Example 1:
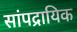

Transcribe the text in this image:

सांपद्रायिक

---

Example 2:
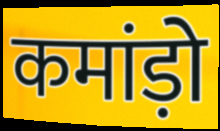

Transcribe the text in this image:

कमांड़ो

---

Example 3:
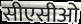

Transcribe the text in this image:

सीएसीओ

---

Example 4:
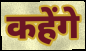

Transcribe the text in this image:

कहेंगे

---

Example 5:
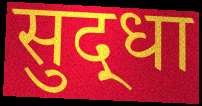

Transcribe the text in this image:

सुद्धा